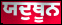
ਯਦੁਥੂਨ